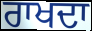
ਰਾਖਦਾ